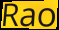
Rao